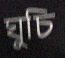
ঘুচি